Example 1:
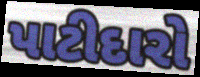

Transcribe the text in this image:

પાટીદારો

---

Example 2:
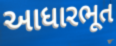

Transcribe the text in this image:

આધારભૂત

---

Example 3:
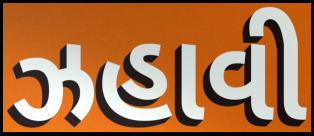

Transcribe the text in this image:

ઝહાવી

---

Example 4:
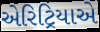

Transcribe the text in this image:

એરિટ્રિયાએ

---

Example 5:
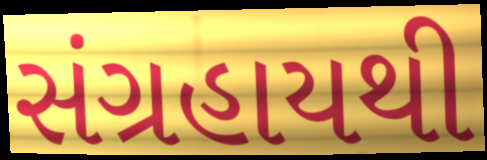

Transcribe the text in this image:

સંગ્રહાયથી